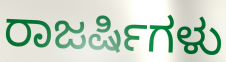
ರಾಜರ್ಷಿಗಳು